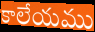
కాలేయము